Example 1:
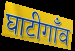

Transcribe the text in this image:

घाटीगाँव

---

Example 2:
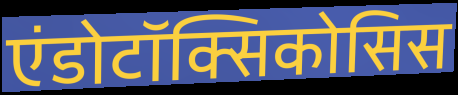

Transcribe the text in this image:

एंडोटॉक्सिकोसिस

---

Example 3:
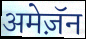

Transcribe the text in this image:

अमेज़ॅन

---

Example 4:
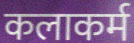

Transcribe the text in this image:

कलाकर्म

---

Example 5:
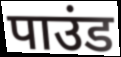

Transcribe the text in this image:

पाउंड